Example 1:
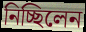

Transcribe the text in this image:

নিচ্ছিলেন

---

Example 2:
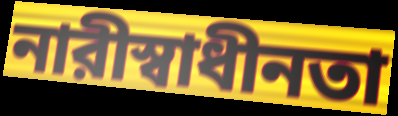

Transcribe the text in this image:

নারীস্বাধীনতা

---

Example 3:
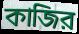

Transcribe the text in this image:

কাজির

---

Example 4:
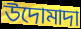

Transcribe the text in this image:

উদোমাদা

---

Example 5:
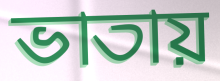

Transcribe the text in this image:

ভাতায়